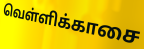
வெள்ளிக்காசை